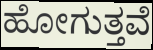
ಹೋಗುತ್ತವೆ